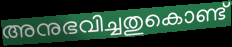
അനുഭവിച്ചതുകൊണ്ട്